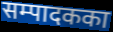
सम्पादकका